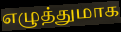
எழுத்துமாக